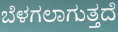
ಬೆಳಗಲಾಗುತ್ತದೆ